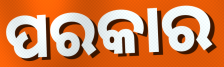
ପରକାର